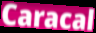
Caracal